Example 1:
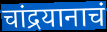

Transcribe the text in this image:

चांद्रयानाचं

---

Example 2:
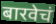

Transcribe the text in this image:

बारवेचं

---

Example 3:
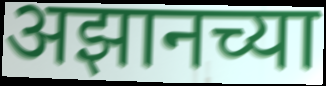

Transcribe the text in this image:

अझानच्या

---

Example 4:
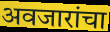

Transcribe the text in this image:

अवजारांचा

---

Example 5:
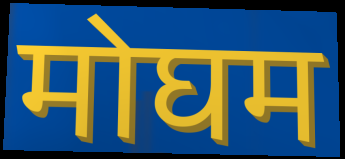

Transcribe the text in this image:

मोघम